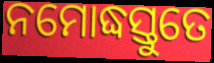
ନମୋଦ୍ଧସ୍ତୁତେ